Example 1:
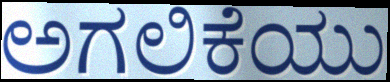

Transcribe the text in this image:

ಅಗಲಿಕೆಯು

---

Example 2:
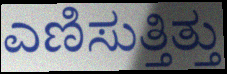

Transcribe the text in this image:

ಎಣಿಸುತ್ತಿತ್ತು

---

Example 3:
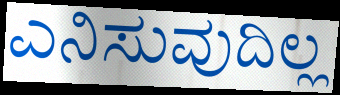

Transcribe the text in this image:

ಎನಿಸುವುದಿಲ್ಲ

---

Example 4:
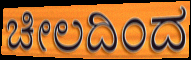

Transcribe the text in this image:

ಚೀಲದಿಂದ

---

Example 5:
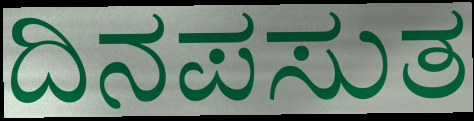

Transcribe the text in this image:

ದಿನಪಸುತ